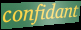
confidant